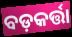
ବଡ଼କର୍ତ୍ତା